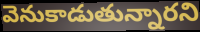
వెనుకాడుతున్నారని